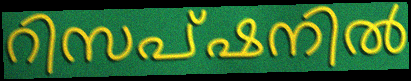
റിസപ്ഷനിൽ